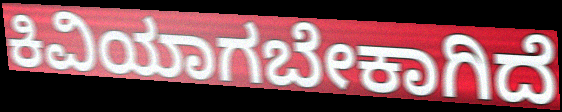
ಕಿವಿಯಾಗಬೇಕಾಗಿದೆ